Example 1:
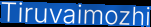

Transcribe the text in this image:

Tiruvaimozhi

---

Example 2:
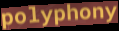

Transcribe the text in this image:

polyphony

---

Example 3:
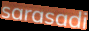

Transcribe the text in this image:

sarasadi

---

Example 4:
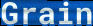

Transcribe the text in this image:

Grain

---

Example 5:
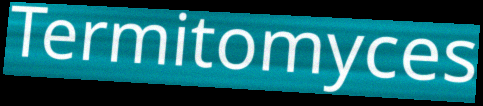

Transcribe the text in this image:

Termitomyces